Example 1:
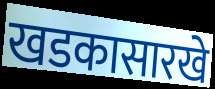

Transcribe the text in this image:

खडकासारखे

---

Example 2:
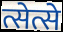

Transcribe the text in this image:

त्सेत्से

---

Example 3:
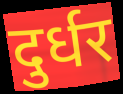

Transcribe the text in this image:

दुर्धर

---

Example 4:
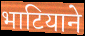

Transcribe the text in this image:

भाटियाने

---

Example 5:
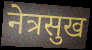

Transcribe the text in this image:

नेत्रसुख